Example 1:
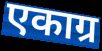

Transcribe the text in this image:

एकाग्र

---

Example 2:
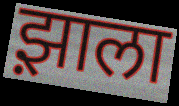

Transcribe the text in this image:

झ़ाला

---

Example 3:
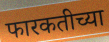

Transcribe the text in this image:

फारकतीच्या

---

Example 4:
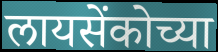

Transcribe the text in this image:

लायसेंकोच्या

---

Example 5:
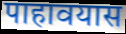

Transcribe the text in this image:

पाहावयास